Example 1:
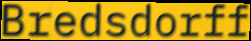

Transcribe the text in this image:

Bredsdorff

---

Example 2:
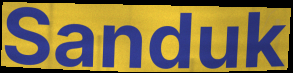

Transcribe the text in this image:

Sanduk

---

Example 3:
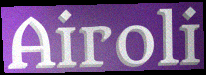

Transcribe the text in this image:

Airoli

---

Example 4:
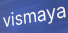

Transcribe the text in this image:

vismaya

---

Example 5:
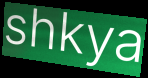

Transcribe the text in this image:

shkya